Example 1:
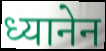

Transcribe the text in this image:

ध्यानेन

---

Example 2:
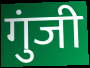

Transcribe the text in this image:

गुंजी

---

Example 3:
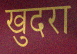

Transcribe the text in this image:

खुदरा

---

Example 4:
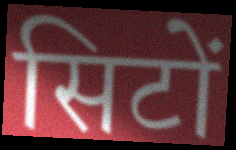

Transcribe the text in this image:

सिटों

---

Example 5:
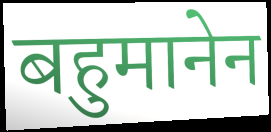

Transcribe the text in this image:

बहुमानेन